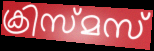
ക്രിസ്മസ്